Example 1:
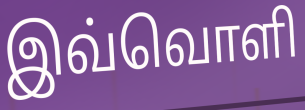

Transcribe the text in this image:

இவ்வொளி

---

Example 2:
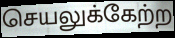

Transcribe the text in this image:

செயலுக்கேற்ற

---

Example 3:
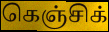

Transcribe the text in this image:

கெஞ்சிக்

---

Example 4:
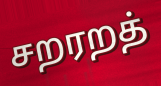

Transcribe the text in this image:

சறரறத்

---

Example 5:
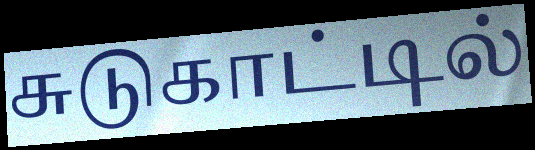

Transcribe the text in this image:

சுடுகாட்டில்